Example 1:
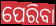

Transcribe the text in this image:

ପେରିବା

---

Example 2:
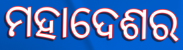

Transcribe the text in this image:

ମହାଦେଶର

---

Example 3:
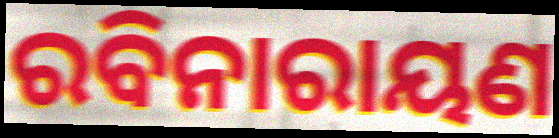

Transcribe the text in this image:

ରବିନାରାୟଣ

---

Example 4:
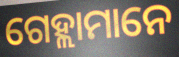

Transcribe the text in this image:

ଗେହ୍ଲାମାନେ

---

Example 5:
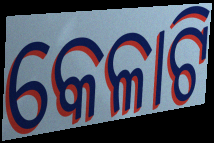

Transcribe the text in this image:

କେଳାଟି